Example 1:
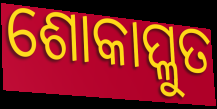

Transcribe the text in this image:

ଶୋକାପ୍ଳୁତ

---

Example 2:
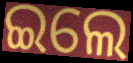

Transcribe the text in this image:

ଇଲେ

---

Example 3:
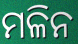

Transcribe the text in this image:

ମଳିନ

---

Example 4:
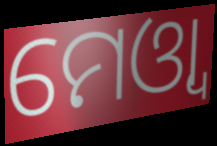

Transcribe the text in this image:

ମେଓ୍ୱା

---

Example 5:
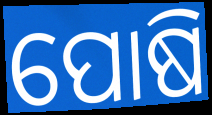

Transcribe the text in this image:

ପୋଷି